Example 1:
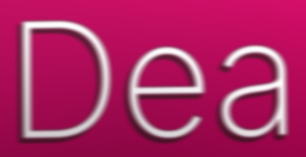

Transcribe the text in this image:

Dea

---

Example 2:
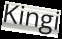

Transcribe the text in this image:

Kingi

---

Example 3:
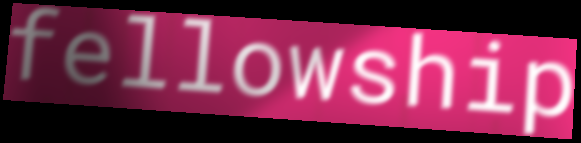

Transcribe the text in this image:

fellowship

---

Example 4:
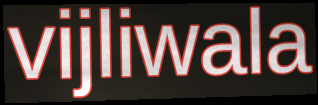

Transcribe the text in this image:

vijliwala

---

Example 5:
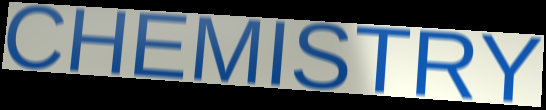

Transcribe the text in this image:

CHEMISTRY